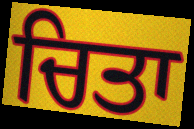
ਚਿਤਾ